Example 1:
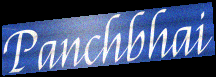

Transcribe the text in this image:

Panchbhai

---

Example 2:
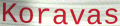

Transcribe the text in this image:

Koravas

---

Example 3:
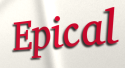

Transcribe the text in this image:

Epical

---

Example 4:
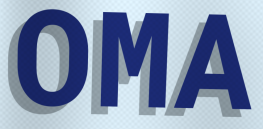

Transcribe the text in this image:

OMA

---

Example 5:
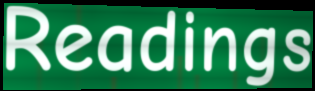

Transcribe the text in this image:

Readings